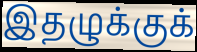
இதழுக்குக்